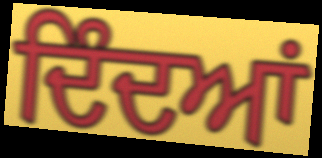
ਦਿੰਦਆਂ